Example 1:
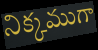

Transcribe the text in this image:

నిక్కముగా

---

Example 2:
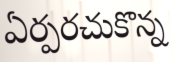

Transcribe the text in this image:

ఏర్పరచుకొన్న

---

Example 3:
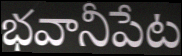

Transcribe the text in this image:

భవానీపేట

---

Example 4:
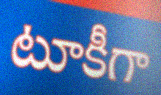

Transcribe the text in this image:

టూకీగా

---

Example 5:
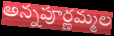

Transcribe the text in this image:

అన్నపూర్ణమ్మల